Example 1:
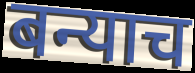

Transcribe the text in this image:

बन्याच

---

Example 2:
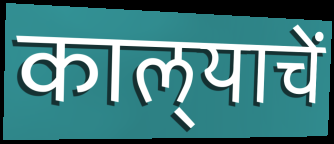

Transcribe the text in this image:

काल्याचें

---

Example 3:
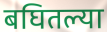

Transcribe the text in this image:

बघितल्या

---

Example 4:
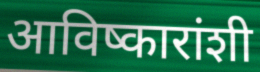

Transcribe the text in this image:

आविष्कारांशी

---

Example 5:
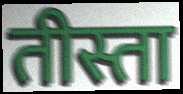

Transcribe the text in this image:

तीस्ता